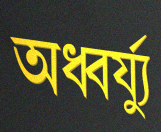
অধ্বর্য্যু